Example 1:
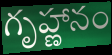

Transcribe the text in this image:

గృహ్ణానం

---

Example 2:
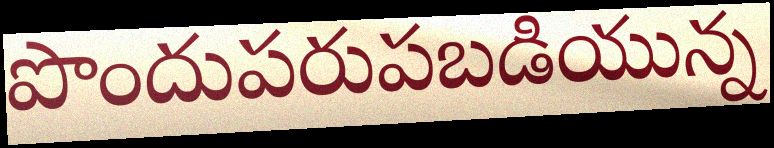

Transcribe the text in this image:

పొందుపరుపబడియున్న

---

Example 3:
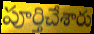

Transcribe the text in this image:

పూర్తిచేశారు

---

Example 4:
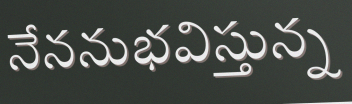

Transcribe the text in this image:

నేననుభవిస్తున్న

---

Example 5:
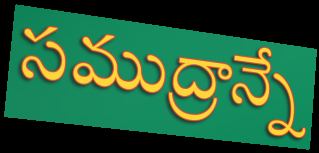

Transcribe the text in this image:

సముద్రాన్నే